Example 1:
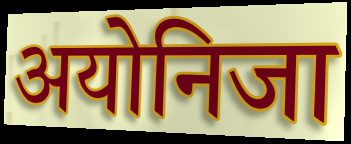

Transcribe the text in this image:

अयोनिजा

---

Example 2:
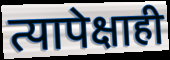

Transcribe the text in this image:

त्यापेक्षाही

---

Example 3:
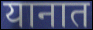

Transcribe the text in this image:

यानात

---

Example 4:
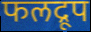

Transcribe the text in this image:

फलद्रूप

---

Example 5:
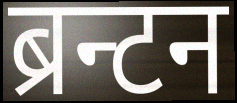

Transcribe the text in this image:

ब्रन्टन